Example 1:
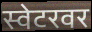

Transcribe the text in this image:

स्वेटरवर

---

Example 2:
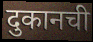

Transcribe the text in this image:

दुकानची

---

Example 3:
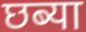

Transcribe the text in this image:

छब्या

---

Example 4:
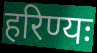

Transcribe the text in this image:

हरिण्यः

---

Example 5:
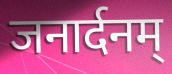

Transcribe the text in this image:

जनार्दनम्